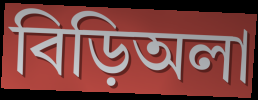
বিড়িঅলা